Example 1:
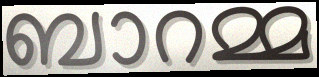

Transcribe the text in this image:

ബാറമ്മ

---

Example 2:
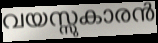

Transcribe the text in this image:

വയസ്സുകാരൻ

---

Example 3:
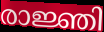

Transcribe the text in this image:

രാജ്ഞി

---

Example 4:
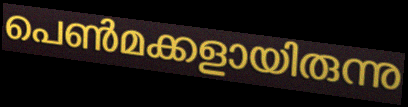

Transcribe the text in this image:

പെൺമക്കളായിരുന്നു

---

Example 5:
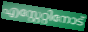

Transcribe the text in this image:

എസ്റ്റേറ്റിനോട്